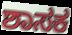
ಶಾಸಕ